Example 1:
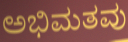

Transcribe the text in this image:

ಅಭಿಮತವು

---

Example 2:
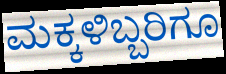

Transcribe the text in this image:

ಮಕ್ಕಳಿಬ್ಬರಿಗೂ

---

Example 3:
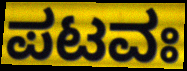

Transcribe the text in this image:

ಪಟವಃ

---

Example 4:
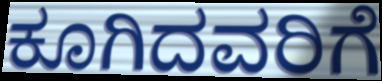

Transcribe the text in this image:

ಕೂಗಿದವರಿಗೆ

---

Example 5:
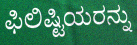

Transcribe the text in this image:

ಫಿಲಿಷ್ಟಿಯರನ್ನು